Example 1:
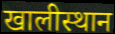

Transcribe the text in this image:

खालीस्थान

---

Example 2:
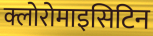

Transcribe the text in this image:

क्लोरोमाइसिटिन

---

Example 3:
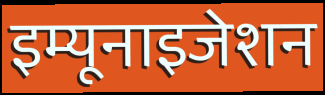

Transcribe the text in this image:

इम्यूनाइजेशन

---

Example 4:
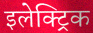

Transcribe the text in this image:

इलेक्ट्रिक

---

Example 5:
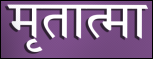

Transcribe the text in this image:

मृतात्मा